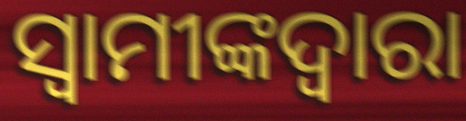
ସ୍ୱାମୀଙ୍କଦ୍ୱାରା